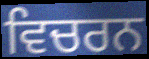
ਵਿਚਰਨ